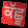
ਕੱਛੂ